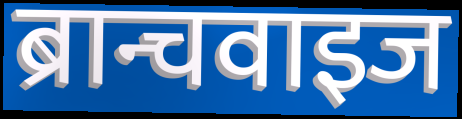
ब्रान्चवाइज